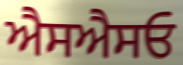
ਐਸਐਸਓ